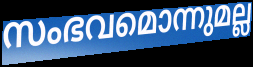
സംഭവമൊന്നുമല്ല